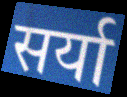
सर्या